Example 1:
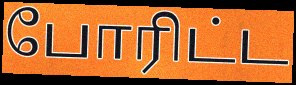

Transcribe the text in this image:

போரிட்ட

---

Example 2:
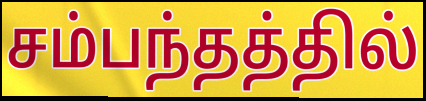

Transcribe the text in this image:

சம்பந்தத்தில்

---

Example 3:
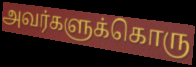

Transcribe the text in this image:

அவர்களுக்கொரு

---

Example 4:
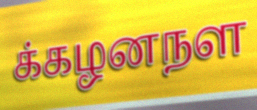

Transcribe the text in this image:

க்கழனநள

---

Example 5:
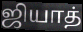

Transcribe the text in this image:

ஜியாத்